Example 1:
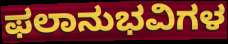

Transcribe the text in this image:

ಫಲಾನುಭವಿಗಳ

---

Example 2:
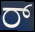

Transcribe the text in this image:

ರ್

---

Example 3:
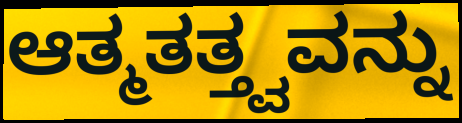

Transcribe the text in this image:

ಆತ್ಮತತ್ತ್ವವನ್ನು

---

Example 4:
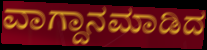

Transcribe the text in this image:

ವಾಗ್ದಾನಮಾಡಿದ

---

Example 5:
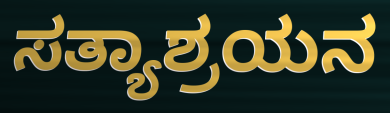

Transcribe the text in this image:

ಸತ್ಯಾಶ್ರಯನ